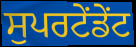
ਸੁਪਰਟੇਂਡੇਂਟ